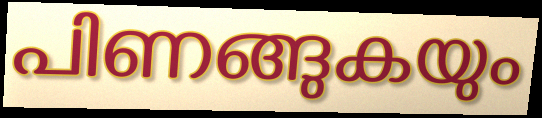
പിണങ്ങുകയും